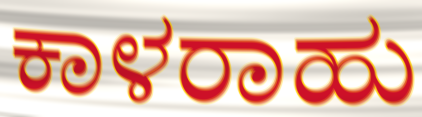
ಕಾಳರಾಹು